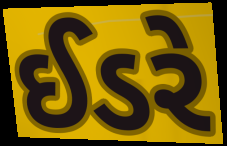
ઈડરે